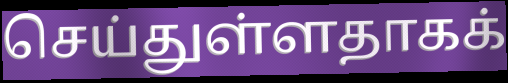
செய்துள்ளதாகக்